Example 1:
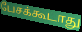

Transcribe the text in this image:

பேசக்கூடாது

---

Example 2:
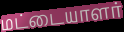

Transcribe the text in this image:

மட்டையாளர்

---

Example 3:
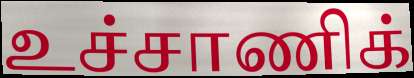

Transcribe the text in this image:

உச்சாணிக்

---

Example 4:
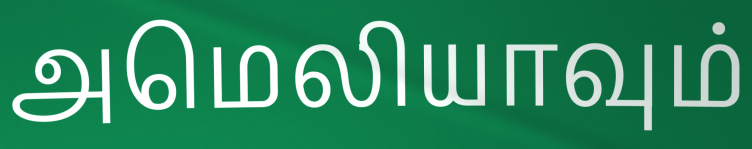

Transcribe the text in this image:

அமெலியாவும்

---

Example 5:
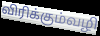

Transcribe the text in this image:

விரிக்கும்வழி